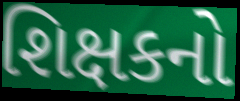
શિક્ષકનો